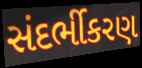
સંદર્ભીકરણ